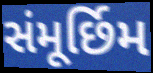
સંમૂર્છિમ